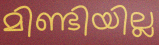
മിണ്ടിയില്ല